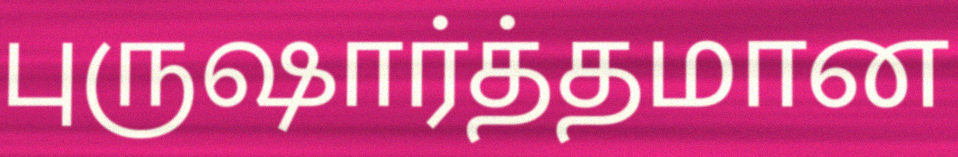
புருஷார்த்தமான